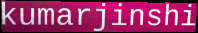
kumarjinshi